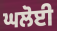
ਘਲੋਈ